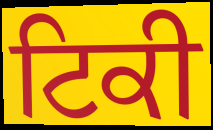
ਟਿਕੀ